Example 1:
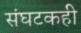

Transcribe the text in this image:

संघटकही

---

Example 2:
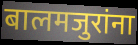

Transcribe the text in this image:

बालमजुरांना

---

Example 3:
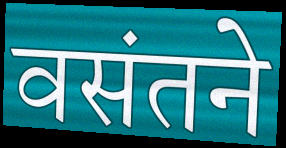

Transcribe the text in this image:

वसंतने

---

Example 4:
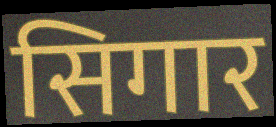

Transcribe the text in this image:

सिगार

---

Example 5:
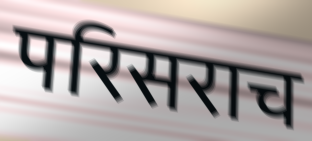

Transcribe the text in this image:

परिसराच